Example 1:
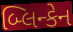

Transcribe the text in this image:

બ્લિન્કેન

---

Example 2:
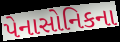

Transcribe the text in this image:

પેનાસોનિકના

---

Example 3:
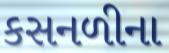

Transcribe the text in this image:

કસનળીના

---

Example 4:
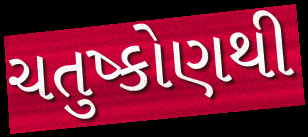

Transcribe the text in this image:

ચતુષ્કોણથી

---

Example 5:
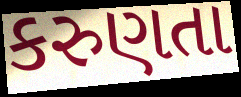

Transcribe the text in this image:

કરુણતા